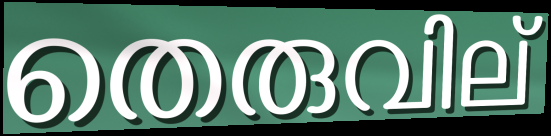
തെരുവില്